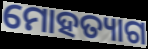
ମୋହତ୍ୟାଗ